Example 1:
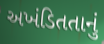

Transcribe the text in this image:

અખંડિતતાનું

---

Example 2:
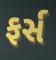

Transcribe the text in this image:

ફર્સ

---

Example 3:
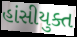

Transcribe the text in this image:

હાંસીયુક્ત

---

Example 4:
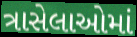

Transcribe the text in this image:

ત્રાસેલાઓમાં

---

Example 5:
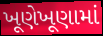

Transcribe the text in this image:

ખૂણેખૂણામાં